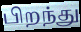
பிறந்து